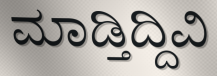
ಮಾಡ್ತಿದ್ದಿವಿ